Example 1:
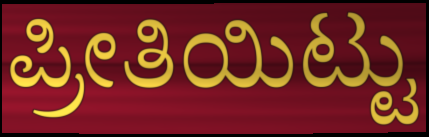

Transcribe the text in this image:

ಪ್ರೀತಿಯಿಟ್ಟು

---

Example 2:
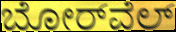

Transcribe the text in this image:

ಬೋರ್‌ವೆಲ್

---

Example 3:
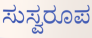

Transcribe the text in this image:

ಸುಸ್ವರೂಪ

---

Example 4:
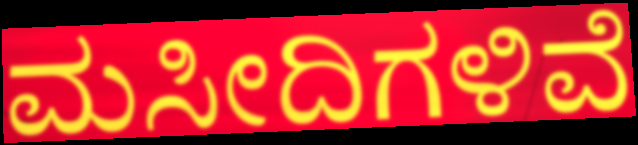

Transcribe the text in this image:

ಮಸೀದಿಗಳಿವೆ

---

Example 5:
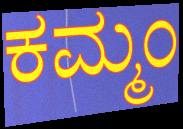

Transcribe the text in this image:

ಕಮ್ಮಂ